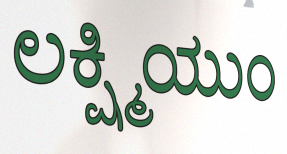
ಲಕ್ಷ್ಮಿಯುಂ